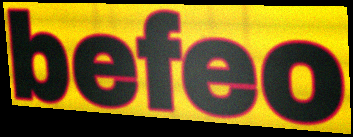
befeo